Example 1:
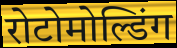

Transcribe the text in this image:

रोटोमोल्डिंग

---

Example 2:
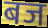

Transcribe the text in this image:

बज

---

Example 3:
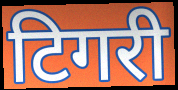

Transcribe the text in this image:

टिगरी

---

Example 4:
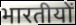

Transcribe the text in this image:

भारतीयों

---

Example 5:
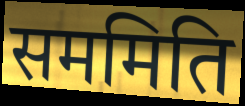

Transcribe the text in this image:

सममिति